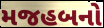
મજહબનો